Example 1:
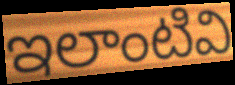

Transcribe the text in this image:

ఇలాంటివి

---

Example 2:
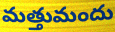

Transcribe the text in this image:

మత్తుమందు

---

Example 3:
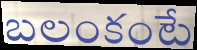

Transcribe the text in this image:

బలంకంటే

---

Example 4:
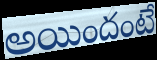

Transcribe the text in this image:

అయిందంటే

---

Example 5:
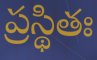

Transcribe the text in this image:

ప్రస్థితః